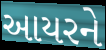
આયરને